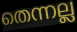
തെന്നല്ല